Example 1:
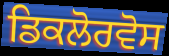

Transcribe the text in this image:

ਡਿਕਲੋਰਵੋਸ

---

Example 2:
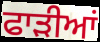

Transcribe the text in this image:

ਫਾੜੀਆਂ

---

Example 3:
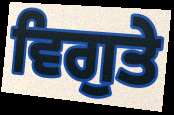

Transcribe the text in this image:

ਵਿਗੁਤੇ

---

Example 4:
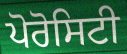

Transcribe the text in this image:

ਪੋਰੋਸਿਟੀ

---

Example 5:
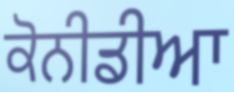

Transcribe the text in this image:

ਕੋਨੀਡੀਆ